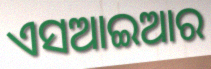
ଏସଆଇଆର